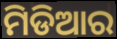
ମିଡିଆର